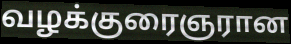
வழக்குரைஞரான